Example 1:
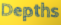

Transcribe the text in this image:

Depths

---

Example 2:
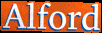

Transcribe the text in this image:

Alford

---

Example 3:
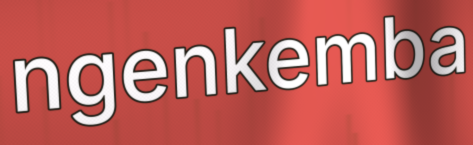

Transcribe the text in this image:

ngenkemba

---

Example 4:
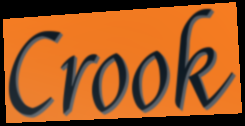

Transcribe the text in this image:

Crook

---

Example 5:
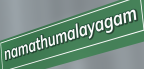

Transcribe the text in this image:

namathumalayagam